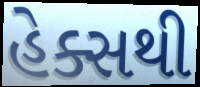
હેક્સથી